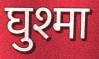
घुश्मा